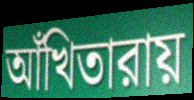
আঁখিতারায়